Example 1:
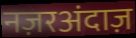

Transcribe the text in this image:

नज़रअंदाज़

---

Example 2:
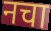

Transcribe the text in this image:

नचा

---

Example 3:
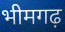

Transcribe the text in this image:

भीमगढ़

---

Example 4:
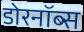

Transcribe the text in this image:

डोरनॉब्स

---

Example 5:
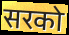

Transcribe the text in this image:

सरको